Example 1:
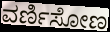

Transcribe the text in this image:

ವರ್ಣಿಸೋಣ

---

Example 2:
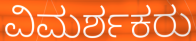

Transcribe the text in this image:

ವಿಮರ್ಶಕರು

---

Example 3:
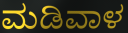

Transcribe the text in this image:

ಮಡಿವಾಳ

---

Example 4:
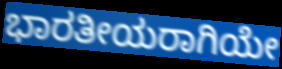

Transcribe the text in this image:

ಭಾರತೀಯರಾಗಿಯೇ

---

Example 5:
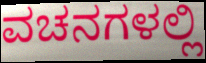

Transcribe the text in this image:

ವಚನಗಳಲ್ಲಿ